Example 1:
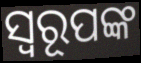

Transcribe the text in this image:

ସ୍ୱରୂପଙ୍କ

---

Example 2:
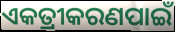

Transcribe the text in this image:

ଏକତ୍ରୀକରଣପାଇଁ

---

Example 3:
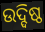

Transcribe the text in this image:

ଉଦ୍ଦିଷ୍ଠ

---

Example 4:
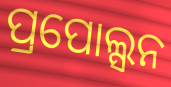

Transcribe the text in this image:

ପ୍ରପୋଲ୍ସନ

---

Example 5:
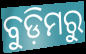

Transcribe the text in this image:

ବୁଡ଼ିମରୁ